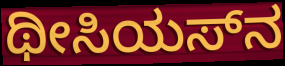
ಥೀಸಿಯಸ್‌ನ